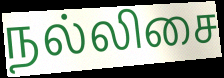
நல்லிசை